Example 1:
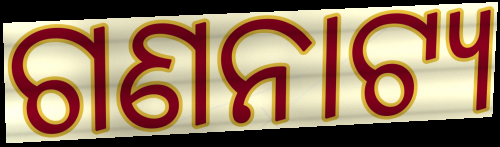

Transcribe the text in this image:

ଗଣନାଟ୍ୟ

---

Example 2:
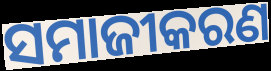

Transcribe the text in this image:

ସମାଜୀକରଣ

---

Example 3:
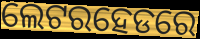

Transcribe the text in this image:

ଲେଟରହେଡରେ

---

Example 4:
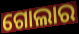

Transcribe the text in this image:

ଗୋଲାର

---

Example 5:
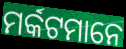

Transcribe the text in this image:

ମର୍କଟମାନେ